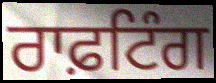
ਰਾਫ਼ਟਿੰਗ